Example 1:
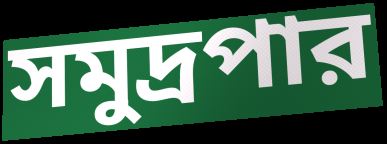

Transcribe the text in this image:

সমুদ্রপার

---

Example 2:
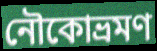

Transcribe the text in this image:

নৌকোভ্রমণ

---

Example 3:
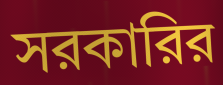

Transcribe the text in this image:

সরকারির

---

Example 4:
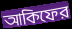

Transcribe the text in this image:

আকিফের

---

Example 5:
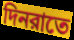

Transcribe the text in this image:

দিনরাতে